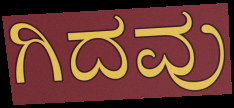
ಗಿದವು